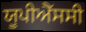
ਯੂਪੀਐੱਸਸੀ